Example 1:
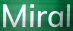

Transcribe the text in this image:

Miral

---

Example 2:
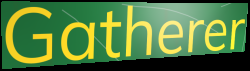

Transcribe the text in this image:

Gatherer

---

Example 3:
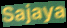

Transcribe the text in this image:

Sajaya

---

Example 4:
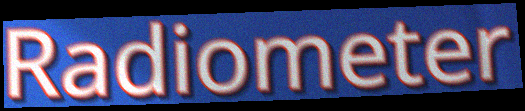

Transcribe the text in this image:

Radiometer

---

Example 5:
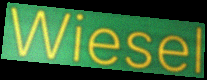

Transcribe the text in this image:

Wiesel